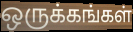
ஒருக்கங்கள்